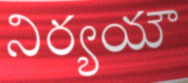
నిర్యయౌ